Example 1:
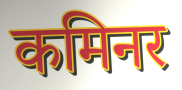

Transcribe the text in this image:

कमिनर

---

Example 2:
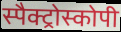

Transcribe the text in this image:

स्पैक्ट्रोस्कोपी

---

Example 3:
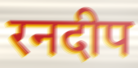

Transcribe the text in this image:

रनदीप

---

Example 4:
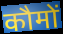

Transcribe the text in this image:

कौमों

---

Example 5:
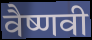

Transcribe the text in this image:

वैष्णवी